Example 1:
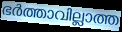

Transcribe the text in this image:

ഭർത്താവില്ലാത്ത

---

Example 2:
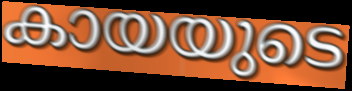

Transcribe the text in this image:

കായയുടെ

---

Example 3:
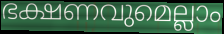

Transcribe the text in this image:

ഭക്ഷണവുമെല്ലാം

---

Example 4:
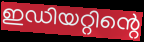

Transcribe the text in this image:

ഇഡിയറ്റിന്റെ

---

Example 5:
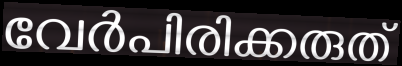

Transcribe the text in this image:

വേർപിരിക്കരുത്